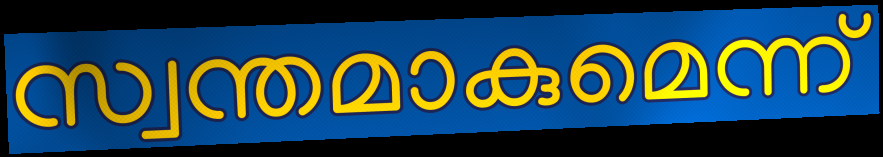
സ്വന്തമാകുമെന്ന്